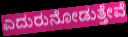
ಎದುರುನೋಡುತ್ತೇವೆ